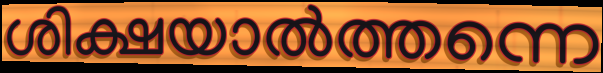
ശിക്ഷയാൽത്തന്നെ